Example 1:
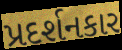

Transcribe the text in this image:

પ્રદર્શનકાર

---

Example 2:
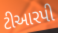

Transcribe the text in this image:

ટીઆરપી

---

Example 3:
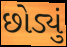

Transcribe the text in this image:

છોડ્યું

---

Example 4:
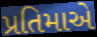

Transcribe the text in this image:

પ્રતિમાએ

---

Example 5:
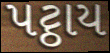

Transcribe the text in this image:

પટ્ઠાય